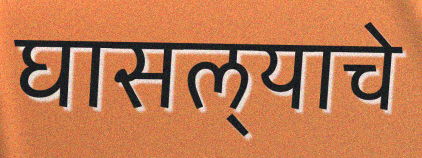
घासल्याचे